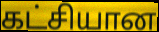
கட்சியான